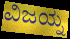
ವಿಜಯ್ನ